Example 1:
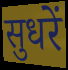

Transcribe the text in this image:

सुधरें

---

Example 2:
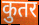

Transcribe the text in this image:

कुतर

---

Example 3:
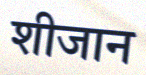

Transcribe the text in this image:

शीजान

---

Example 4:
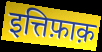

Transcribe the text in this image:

इत्तिफ़ाक़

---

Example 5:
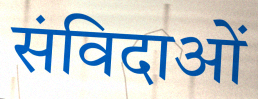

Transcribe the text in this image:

संविदाओं